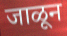
जाळून